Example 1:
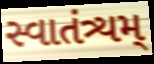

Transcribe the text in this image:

સ્વાતંત્ર્યમ્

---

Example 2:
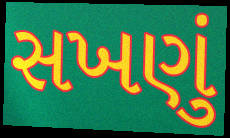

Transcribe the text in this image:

સખણું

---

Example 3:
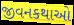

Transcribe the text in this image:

જીવનકથાઓ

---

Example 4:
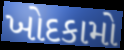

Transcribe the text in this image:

ખોદકામો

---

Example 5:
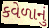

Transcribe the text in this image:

કવેળાનું